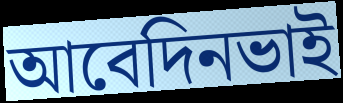
আবেদিনভাই